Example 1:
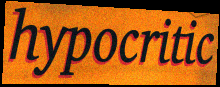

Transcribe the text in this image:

hypocritic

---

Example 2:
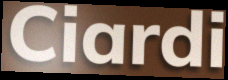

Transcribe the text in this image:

Ciardi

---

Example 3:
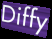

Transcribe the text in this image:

Diffy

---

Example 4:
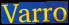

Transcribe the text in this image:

Varro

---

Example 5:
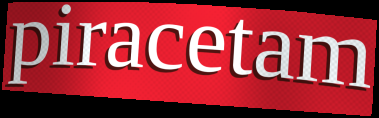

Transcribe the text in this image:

piracetam